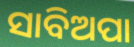
ସାବିଅପା